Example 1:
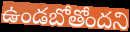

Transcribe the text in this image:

ఉండబోతోందని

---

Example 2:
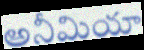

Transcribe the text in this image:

అనీమియా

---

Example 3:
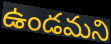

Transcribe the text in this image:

ఉండమని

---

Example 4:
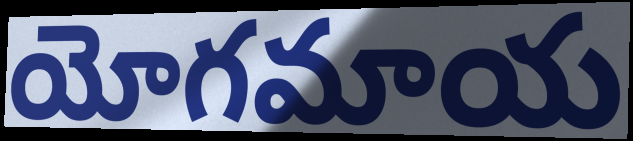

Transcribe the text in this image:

యోగమాయ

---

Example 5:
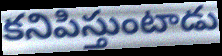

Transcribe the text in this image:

కనిపిస్తుంటాడు